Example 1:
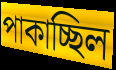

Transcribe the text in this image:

পাকাচ্ছিল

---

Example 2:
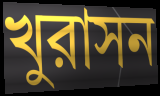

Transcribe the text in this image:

খুরাসন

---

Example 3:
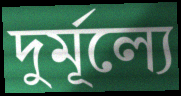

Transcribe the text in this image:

দুর্মূল্যে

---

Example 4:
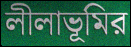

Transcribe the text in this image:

লীলাভূমির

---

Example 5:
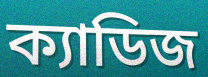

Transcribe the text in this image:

ক্যাডিজ